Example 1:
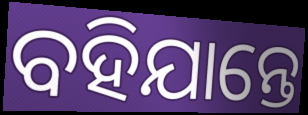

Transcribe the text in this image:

ବହିଯାନ୍ତେ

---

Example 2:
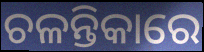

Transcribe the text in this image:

ଚଳନ୍ତିକାରେ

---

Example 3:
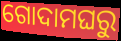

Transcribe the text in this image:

ଗୋଦାମଘରୁ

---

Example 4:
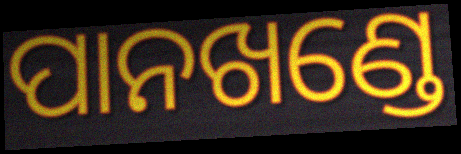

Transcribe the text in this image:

ପାନଖଣ୍ଡେ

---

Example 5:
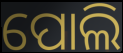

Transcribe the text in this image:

ପୋଲି